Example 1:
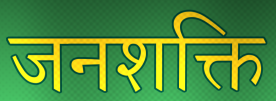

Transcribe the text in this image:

जनशक्ति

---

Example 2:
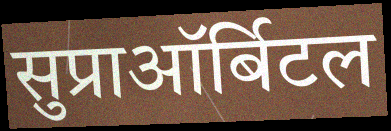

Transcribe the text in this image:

सुप्राऑर्बिटल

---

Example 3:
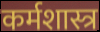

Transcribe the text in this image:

कर्मशास्त्र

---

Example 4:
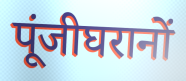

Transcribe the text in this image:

पूंजीघरानों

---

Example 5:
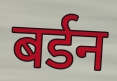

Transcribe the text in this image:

बर्डन